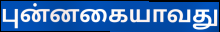
புன்னகையாவது